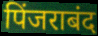
पिंजराबंद